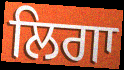
ਲਿਗਾ